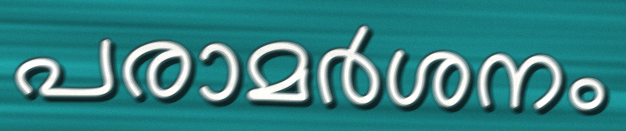
പരാമർശനം